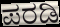
ಪರಡಿ